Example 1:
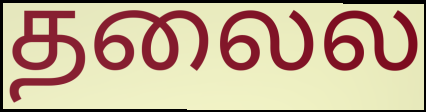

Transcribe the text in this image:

தலைல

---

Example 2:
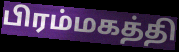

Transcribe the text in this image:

பிரம்மகத்தி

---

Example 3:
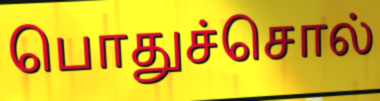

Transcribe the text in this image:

பொதுச்சொல்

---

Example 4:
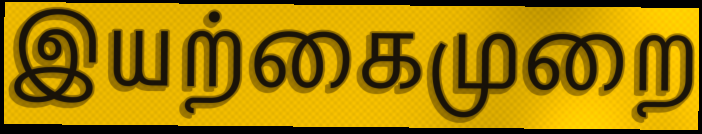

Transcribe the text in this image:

இயற்கைமுறை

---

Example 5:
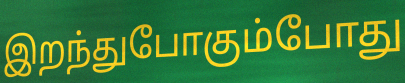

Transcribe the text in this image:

இறந்துபோகும்போது